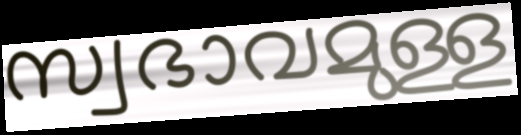
സ്വഭാവമുള്ള